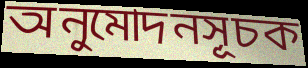
অনুমোদনসূচক